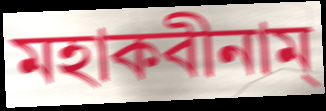
মহাকবীনাম্